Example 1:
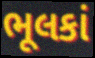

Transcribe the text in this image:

ભૂલકાં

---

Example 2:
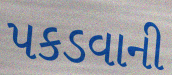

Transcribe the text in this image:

પકડવાની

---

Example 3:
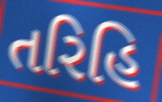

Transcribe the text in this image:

તરિહિ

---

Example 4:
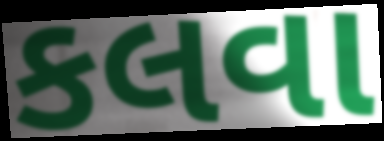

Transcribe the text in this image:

કલવા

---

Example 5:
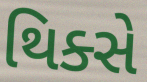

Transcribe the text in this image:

થિક્સે